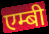
एम्बी